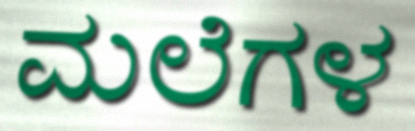
ಮಲೆಗಳ